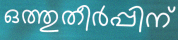
ഒത്തുതീർപ്പിന്